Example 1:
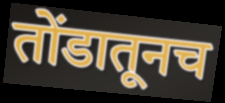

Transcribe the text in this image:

तोंडातूनच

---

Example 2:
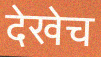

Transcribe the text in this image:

देखेच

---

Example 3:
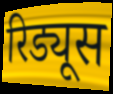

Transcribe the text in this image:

रिड्यूस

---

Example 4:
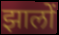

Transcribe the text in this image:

झालों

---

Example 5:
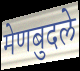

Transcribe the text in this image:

मेणबुदले